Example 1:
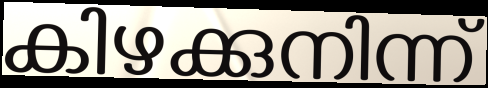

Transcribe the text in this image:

കിഴക്കുനിന്ന്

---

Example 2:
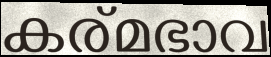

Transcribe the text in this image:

കര്മഭാവ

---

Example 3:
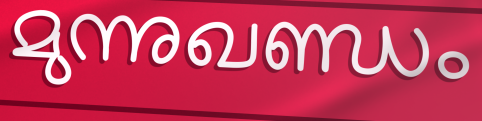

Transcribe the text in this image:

മുന്നുഖണ്ഡം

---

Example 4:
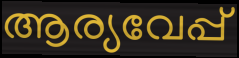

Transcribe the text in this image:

ആര്യവേപ്പ്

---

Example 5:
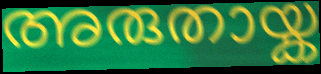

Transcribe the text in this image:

അരുതായ്ക